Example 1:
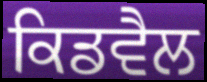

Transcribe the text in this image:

ਕਿਡਵੈਲ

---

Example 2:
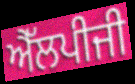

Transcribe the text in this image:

ਐੱਲਪੀਜੀ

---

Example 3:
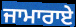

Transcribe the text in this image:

ਜਾਮਾਰਾਏ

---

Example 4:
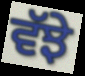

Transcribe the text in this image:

ਵੱਝੇ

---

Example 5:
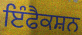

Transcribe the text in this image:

ਇੰਫੈਕਸ਼ਨ